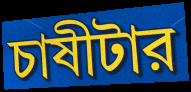
চাষীটার